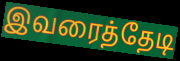
இவரைத்தேடி